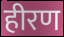
हीरण